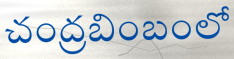
చంద్రబింబంలో